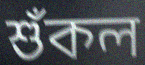
শুঁকল